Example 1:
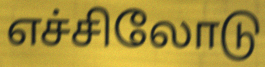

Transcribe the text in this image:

எச்சிலோடு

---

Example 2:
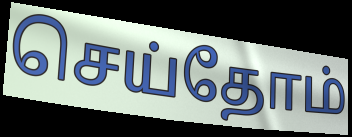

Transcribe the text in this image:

செய்தோம்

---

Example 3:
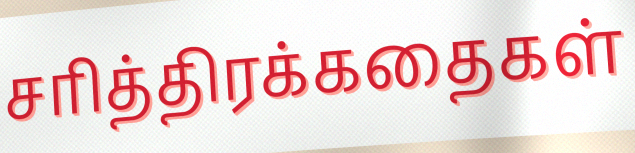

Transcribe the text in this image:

சரித்திரக்கதைகள்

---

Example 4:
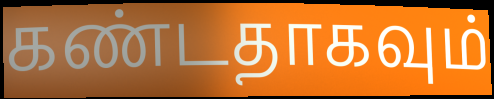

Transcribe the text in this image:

கண்டதாகவும்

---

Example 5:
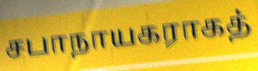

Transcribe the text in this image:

சபாநாயகராகத்